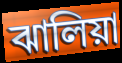
ঝালিয়া